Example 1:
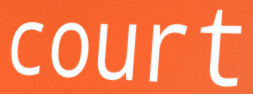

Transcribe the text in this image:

court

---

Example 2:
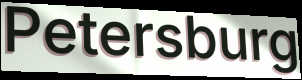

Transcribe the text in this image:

Petersburg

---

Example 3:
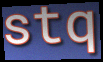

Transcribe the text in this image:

stq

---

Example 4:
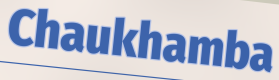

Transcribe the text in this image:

Chaukhamba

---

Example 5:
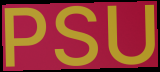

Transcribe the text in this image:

PSU